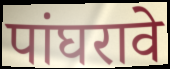
पांघरावे